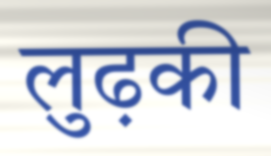
लुढ़की